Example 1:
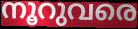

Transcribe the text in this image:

നൂറുവരെ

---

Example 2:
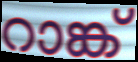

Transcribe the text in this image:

റാങ്ക്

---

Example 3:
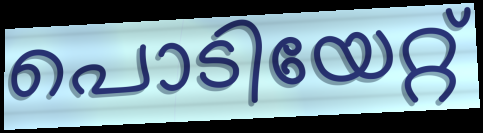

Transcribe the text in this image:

പൊടിയേറ്റ്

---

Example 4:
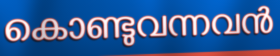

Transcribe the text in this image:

കൊണ്ടുവന്നവൻ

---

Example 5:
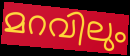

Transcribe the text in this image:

മറവിലും